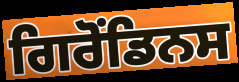
ਗਿਰੋਂਡਿਨਸ